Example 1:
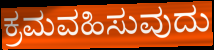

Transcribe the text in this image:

ಕ್ರಮವಹಿಸುವುದು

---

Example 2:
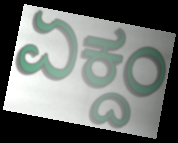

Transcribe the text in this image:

ಏಕ್ದಂ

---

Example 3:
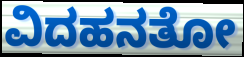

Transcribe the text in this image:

ವಿದಹನತೋ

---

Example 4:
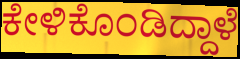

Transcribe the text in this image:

ಕೇಳಿಕೊಂಡಿದ್ದಾಳೆ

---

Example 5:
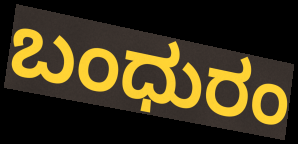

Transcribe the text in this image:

ಬಂಧುರಂ